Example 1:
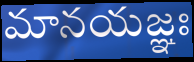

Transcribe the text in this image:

మానయజ్ఞః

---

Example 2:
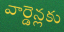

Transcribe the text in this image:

వార్డెన్లకు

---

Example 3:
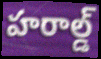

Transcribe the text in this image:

హరాల్డ్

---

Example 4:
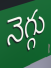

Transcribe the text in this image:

నెగ్గు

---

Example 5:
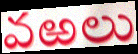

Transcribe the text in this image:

వఱలు